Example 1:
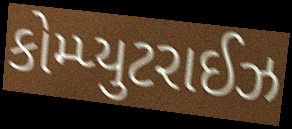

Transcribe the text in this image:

કોમ્પ્યુટરાઈઝ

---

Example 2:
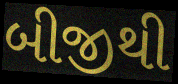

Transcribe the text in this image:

બીજીથી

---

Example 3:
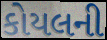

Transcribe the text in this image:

કોયલની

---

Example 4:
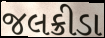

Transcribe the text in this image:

જલક્રીડા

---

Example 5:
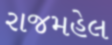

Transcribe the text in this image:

રાજમહેલ